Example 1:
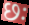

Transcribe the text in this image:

છઃ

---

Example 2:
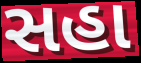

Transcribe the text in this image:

સહા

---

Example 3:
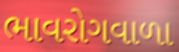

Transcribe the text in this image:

ભાવરોગવાળા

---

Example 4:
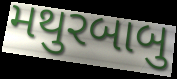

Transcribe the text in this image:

મથુરબાબુ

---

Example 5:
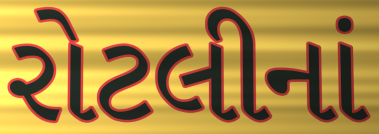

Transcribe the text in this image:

રોટલીનાં